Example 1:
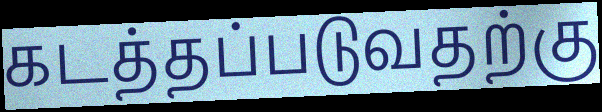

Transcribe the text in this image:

கடத்தப்படுவதற்கு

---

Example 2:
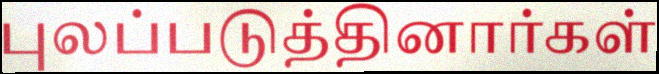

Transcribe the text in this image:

புலப்படுத்தினார்கள்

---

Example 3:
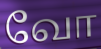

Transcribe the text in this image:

வோ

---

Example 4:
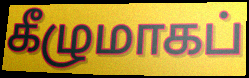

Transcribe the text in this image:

கீழுமாகப்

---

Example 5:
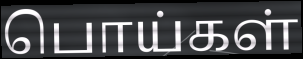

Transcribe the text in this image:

பொய்கள்